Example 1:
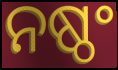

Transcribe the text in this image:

ନଷ୍ଠଂ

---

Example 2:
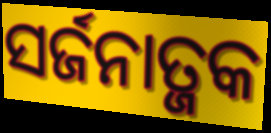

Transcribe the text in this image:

ସର୍ଜନାତ୍ଜକ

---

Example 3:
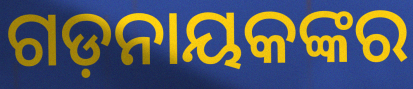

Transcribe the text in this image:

ଗଡ଼ନାୟକଙ୍କର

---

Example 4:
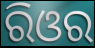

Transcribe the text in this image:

ରିଓର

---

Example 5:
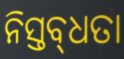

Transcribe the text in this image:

ନିସ୍ତବ୍‌ଧତା